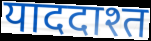
याददाश्त